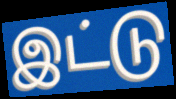
இட்டு